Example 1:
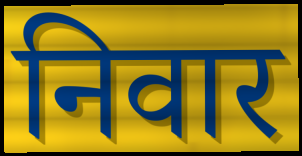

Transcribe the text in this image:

निवार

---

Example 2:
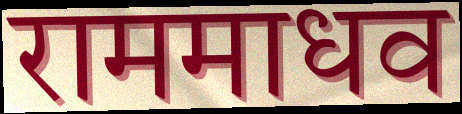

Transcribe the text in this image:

राममाधव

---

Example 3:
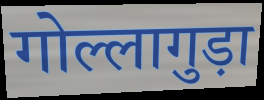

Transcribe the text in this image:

गोल्लागुड़ा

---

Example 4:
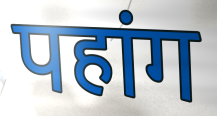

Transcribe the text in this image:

पहांग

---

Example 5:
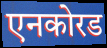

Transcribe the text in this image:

एनकोरड